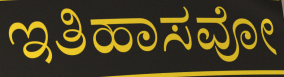
ಇತಿಹಾಸವೋ